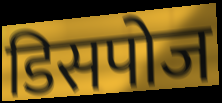
डिसपोज